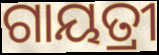
ଗାୟତ୍ରୀ